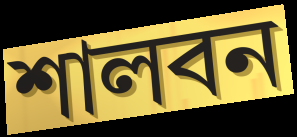
শালবন